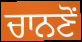
ਚਾਨਣੋਂ